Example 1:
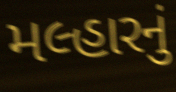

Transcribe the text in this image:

મલ્હારનું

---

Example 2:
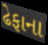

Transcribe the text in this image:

ઢેફાના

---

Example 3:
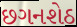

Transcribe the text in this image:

છગનશેઠ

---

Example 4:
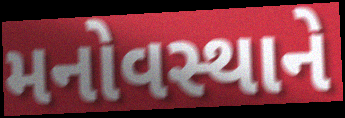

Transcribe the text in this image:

મનોવસ્થાને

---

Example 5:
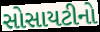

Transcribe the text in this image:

સોસાયટીનો